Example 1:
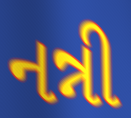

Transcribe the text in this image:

નન્ની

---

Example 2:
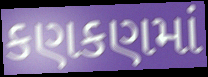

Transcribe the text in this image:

કણકણમાં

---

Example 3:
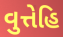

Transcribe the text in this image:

વુત્તેહિ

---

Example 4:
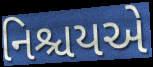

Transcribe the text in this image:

નિશ્ચયએ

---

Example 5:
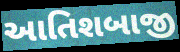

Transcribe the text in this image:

આતિશબાજી